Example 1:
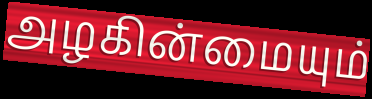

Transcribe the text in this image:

அழகின்மையும்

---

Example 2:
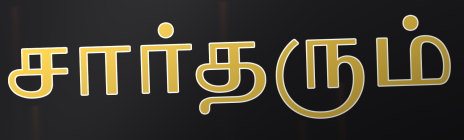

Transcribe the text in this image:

சார்தரும்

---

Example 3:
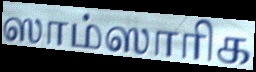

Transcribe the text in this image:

ஸாம்ஸாரிக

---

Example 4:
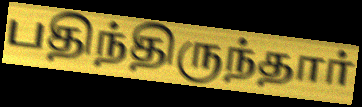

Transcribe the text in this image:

பதிந்திருந்தார்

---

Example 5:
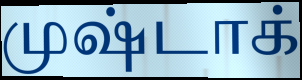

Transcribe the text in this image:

முஷ்டாக்